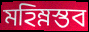
মহিম্নস্তব